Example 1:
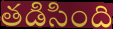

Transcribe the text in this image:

తడిసింది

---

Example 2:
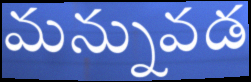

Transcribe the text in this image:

మన్నువడ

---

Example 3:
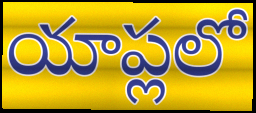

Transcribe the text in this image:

యాప్లలో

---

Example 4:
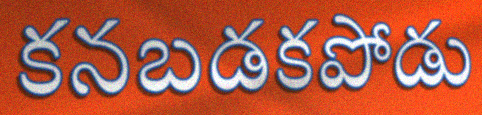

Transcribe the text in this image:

కనబడకపోడు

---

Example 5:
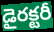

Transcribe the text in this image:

డైరక్టరీ